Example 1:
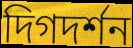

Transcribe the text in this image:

দিগদর্শন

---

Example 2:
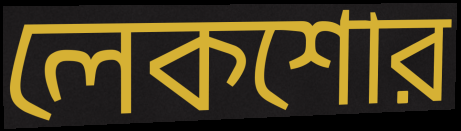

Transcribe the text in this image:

লেকশোর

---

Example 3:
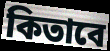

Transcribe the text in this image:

কিতাবে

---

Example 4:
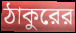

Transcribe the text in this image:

ঠাকুরের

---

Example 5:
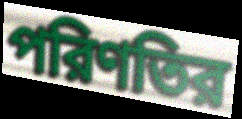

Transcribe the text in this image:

পরিণতির